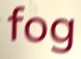
fog